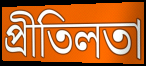
প্ৰীতিলতা